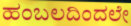
ಹಂಬಲದಿಂದಲೇ